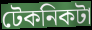
টেকনিকটা